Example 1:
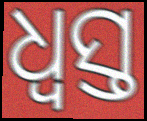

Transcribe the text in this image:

ଧ୍ବସ୍ତ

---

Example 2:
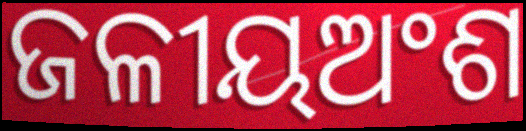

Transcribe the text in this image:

ଜଳୀୟଅଂଶ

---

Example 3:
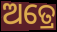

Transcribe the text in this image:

ଅତ୍ରେ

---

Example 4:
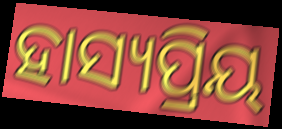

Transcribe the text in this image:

ହାସ୍ୟପ୍ରିୟ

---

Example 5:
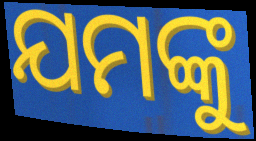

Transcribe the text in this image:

ଯମଙ୍କୁ